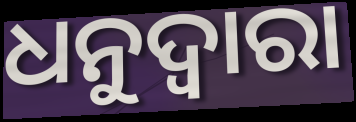
ଧନୁଦ୍ୱାରା